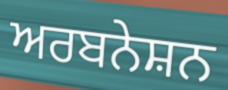
ਅਰਬਨੇਸ਼ਨ